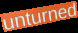
unturned